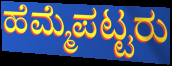
ಹೆಮ್ಮೆಪಟ್ಟರು